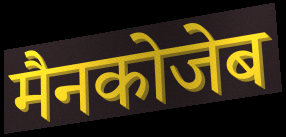
मैनकोजेब